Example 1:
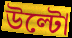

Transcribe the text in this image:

উল্টো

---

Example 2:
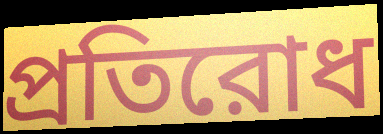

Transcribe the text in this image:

প্রতিরোধ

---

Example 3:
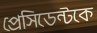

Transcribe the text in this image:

প্রেসিডেন্টকে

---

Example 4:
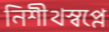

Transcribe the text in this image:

নিশীথস্বপ্নে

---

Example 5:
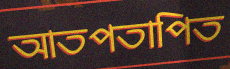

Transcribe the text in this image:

আতপতাপিত